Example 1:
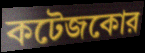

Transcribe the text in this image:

কটেজকোর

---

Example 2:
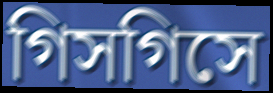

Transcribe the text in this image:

গিসগিসে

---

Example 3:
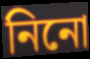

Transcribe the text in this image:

নিনো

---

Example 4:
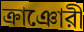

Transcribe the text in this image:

ক্রাঞোরী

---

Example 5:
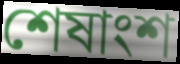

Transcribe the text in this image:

শেষাংশ